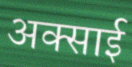
अक्साई